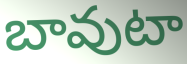
బావుటా